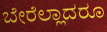
ಬೇರೆಲ್ಲಾದರೂ